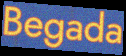
Begada